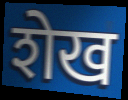
शेख